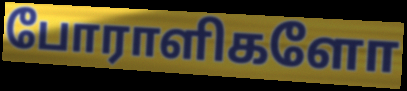
போராளிகளோ